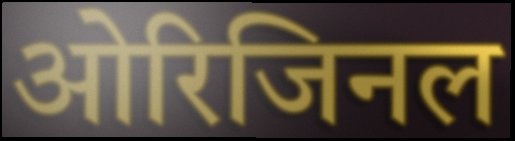
ओरिजिनल